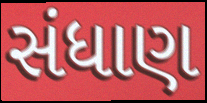
સંધાણ